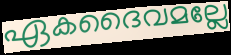
ഏകദൈവമല്ലേ